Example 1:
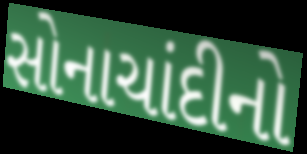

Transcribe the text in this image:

સોનાચાંદીનો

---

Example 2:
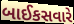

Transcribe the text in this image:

બાઈકસવારે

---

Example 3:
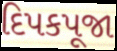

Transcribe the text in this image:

દિપકપૂજા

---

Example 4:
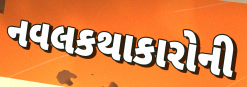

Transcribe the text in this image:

નવલકથાકારોની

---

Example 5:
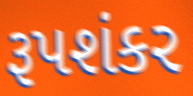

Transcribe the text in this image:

રૂપશંકર